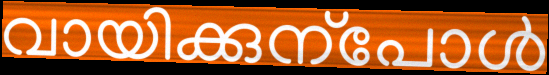
വായിക്കുന്പോൾ